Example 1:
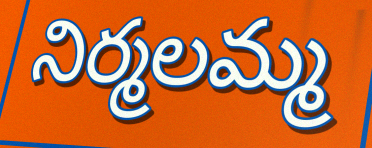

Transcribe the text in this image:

నిర్మలమ్మ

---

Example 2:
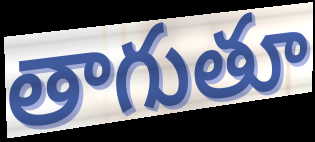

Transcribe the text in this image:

తాగుతూ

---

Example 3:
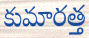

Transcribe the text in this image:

కుమారత్త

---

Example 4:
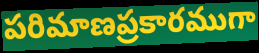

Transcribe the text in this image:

పరిమాణప్రకారముగా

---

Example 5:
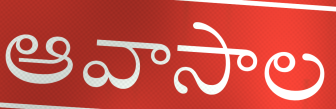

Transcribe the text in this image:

ఆవాసాల